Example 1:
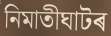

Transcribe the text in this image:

নিমাতীঘাটৰ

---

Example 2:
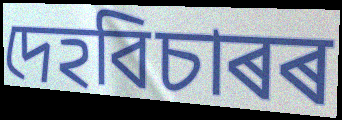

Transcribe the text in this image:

দেহবিচাৰৰ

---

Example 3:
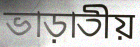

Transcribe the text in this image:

ভাড়াতীয়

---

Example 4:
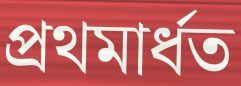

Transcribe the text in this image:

প্ৰথমাৰ্ধত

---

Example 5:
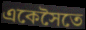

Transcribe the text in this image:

একেসৈতে